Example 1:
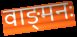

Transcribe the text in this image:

वाङ्मनः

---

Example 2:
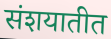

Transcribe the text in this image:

संशयातीत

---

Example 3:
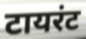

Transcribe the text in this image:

टायरंट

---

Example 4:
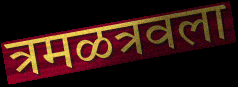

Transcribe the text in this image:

त्रमळत्रवला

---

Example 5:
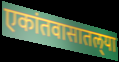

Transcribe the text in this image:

एकांतवासातल्या